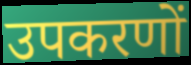
उपकरणों